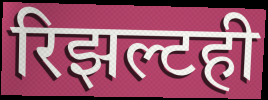
रिझल्टही